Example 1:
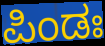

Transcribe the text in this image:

ಪಿಂಡಃ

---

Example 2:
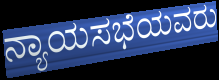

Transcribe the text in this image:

ನ್ಯಾಯಸಭೆಯವರು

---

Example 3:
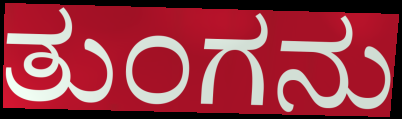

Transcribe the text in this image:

ತುಂಗನು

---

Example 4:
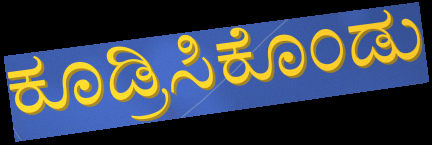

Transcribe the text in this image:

ಕೂಡ್ರಿಸಿಕೊಂಡು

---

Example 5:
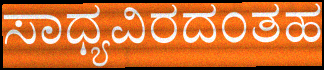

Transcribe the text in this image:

ಸಾಧ್ಯವಿರದಂತಹ